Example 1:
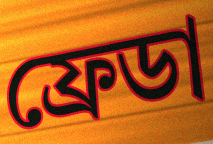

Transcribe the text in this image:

ফ্রেডা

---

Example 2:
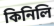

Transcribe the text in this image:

কিনিলি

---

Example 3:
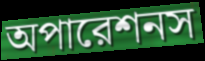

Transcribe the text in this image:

অপারেশনস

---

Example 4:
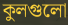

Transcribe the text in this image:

কুলগুলো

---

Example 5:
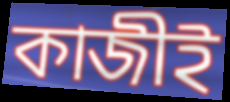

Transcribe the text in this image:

কাজীই